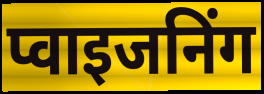
प्वाइजनिंग